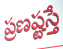
ప్రణష్టస్తే